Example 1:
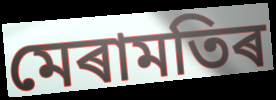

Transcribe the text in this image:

মেৰামতিৰ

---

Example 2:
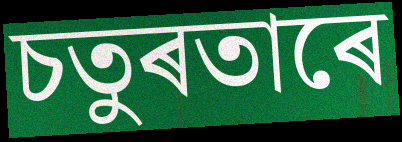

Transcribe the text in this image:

চতুৰতাৰে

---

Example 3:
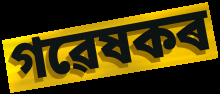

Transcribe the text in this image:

গৱেষকৰ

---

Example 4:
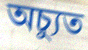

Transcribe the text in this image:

অচ্যুত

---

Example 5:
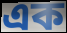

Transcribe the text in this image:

এক